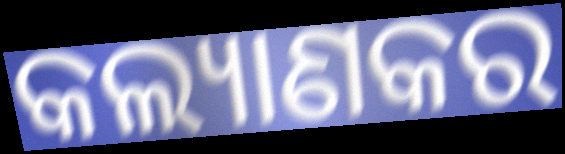
କଲ୍ୟାଣକର